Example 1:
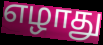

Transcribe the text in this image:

எழாது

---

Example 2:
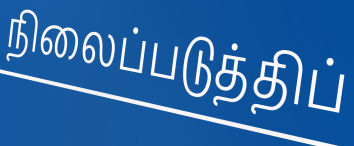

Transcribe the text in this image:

நிலைப்படுத்திப்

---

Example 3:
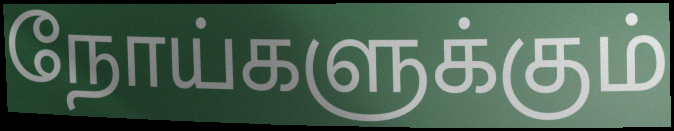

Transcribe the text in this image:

நோய்களுக்கும்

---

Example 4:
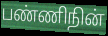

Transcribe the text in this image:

பண்ணிநின்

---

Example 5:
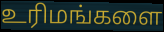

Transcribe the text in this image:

உரிமங்களை